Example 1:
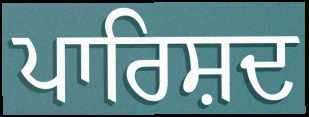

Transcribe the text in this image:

ਪਾਰਿਸ਼ਦ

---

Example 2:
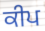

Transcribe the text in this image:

ਕੀਪ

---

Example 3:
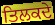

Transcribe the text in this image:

ਤਿਲਕਦੇ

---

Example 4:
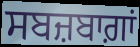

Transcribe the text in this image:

ਸਬਜ਼ਬਾਗ਼ਾਂ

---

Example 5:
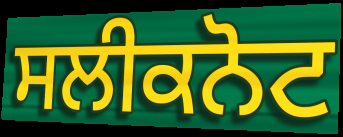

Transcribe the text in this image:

ਸਲੀਕਨੋਟ